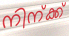
നിന്ക്ക്